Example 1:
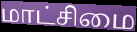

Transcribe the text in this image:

மாட்சிமை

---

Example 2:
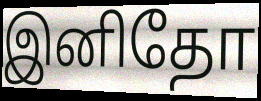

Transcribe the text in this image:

இனிதோ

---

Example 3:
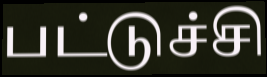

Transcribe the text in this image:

பட்டுச்சி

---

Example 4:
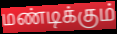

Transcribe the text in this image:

மண்டிக்கும்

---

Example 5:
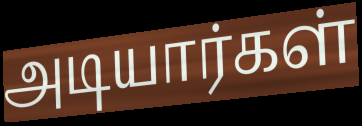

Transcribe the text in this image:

அடியார்கள்